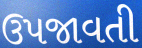
ઉપજાવતી